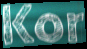
Kor